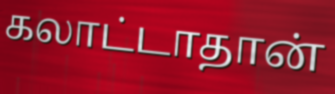
கலாட்டாதான்